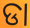
ଡା